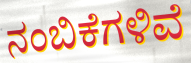
ನಂಬಿಕೆಗಳಿವೆ